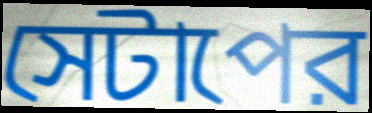
সেটাপের